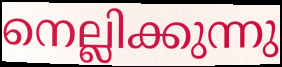
നെല്ലിക്കുന്നു